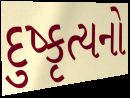
દુષ્કૃત્યનો